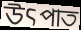
উৎপাত